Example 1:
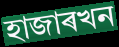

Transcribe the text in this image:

হাজাৰখন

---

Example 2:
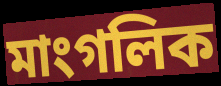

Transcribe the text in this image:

মাংগলিক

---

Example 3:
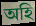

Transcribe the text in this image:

অহি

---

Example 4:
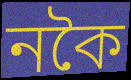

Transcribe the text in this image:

নকৈ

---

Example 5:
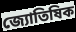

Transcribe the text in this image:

জ্যোতিষিক